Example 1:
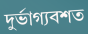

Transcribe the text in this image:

দুর্ভাগ্যবশত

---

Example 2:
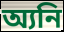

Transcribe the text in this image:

অ্যনি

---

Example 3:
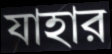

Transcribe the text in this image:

যাহার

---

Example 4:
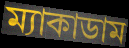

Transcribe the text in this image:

ম্যাকাডাম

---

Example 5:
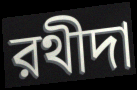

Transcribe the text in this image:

রথীদা